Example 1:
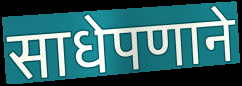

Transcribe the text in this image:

साधेपणाने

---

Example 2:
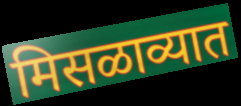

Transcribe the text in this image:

मिसळाव्यात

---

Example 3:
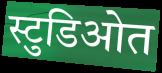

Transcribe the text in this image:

स्टुडिओत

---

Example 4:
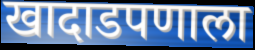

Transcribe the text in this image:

खादाडपणाला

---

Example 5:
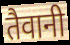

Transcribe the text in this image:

तैवानी